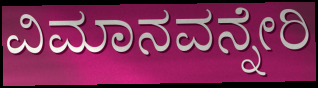
ವಿಮಾನವನ್ನೇರಿ